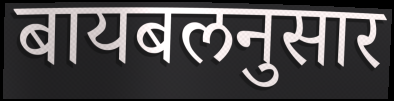
बायबलनुसार